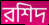
রশিদ